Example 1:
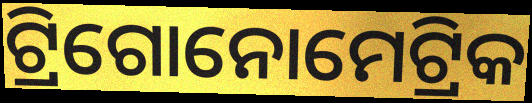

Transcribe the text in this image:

ଟ୍ରିଗୋନୋମେଟ୍ରିକ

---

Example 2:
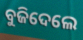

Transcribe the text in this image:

ବୁଜିଦେଲେ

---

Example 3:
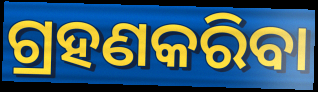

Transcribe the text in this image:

ଗ୍ରହଣକରିବା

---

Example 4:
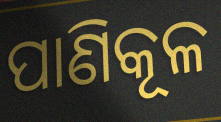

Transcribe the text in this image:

ପାଣିକୂଳ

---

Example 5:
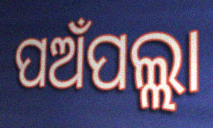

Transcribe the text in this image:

ପଅଁପଲ୍ଲା